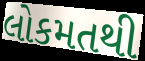
લોકમતથી